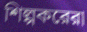
শিল্পকরেরা